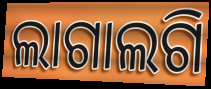
ଲାଗାଲଗି